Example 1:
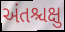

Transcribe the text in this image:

અંતશ્ચક્ષુ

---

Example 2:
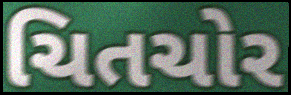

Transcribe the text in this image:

ચિતચોર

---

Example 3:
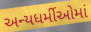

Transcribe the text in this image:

અન્યધર્મીઓમાં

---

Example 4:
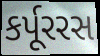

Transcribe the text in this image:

કર્પૂરરસ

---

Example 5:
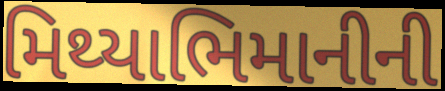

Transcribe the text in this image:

મિથ્યાભિમાનીની